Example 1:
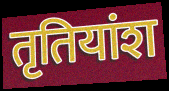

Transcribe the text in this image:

तृतियांश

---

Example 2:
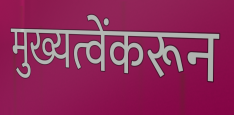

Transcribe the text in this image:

मुख्यत्वेंकरून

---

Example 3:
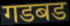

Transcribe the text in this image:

गडबड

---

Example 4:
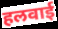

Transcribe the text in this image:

हलवाई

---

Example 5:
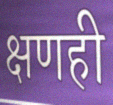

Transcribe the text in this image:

क्षणही